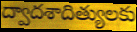
ద్వాదశాదిత్యులకు